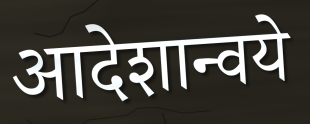
आदेशान्वये